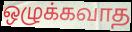
ஒழுக்கவாத